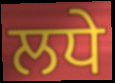
ਲਧੇ